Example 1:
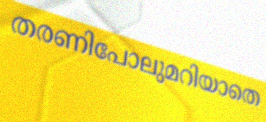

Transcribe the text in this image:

തരണിപോലുമറിയാതെ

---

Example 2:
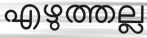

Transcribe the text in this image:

എഴുത്തല്ല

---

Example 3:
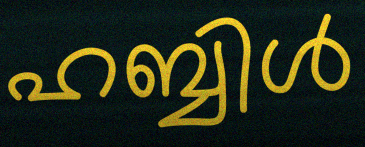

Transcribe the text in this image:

ഹബ്ബിൾ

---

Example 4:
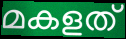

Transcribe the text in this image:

മകളത്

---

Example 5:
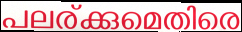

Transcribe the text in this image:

പലര്ക്കുമെതിരെ